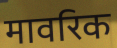
मावरिक